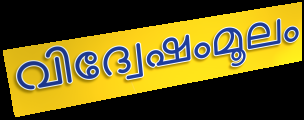
വിദ്വേഷംമൂലം